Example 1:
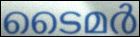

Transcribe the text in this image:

ടൈമർ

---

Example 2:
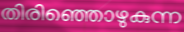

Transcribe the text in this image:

തിരിഞ്ഞൊഴുകുന്ന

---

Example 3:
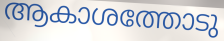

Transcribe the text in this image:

ആകാശത്തോടു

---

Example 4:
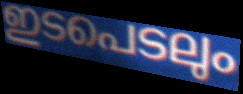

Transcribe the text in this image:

ഇടപെടലും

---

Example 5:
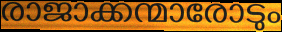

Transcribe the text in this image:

രാജാക്കന്മാരോടും